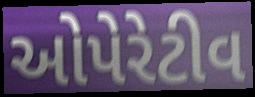
ઓપેરેટીવ